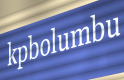
kpbolumbu